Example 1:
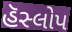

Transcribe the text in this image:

હૅસ્લોપ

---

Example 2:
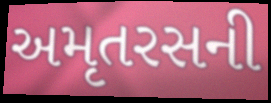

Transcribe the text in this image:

અમૃતરસની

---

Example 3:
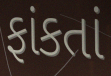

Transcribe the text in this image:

ફાંકતાં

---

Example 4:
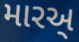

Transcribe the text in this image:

મારઅ્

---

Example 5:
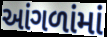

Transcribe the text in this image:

આંગળાંમાં